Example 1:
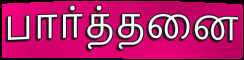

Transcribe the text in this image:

பார்த்தனை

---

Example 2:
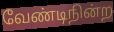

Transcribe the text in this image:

வேண்டிநின்ற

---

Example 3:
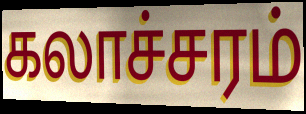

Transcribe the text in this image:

கலாச்சரம்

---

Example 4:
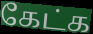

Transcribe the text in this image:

கேட்க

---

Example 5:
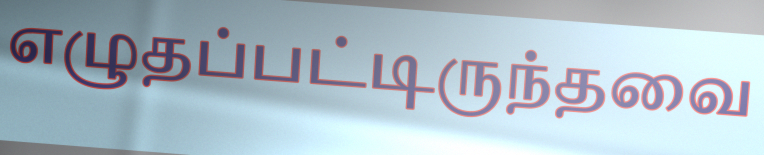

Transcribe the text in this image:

எழுதப்பட்டிருந்தவை